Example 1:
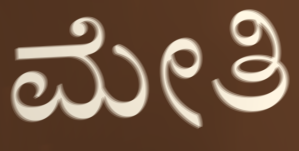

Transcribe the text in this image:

ಮೇತಿ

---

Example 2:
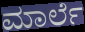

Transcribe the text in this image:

ಮಾರ್ಲೆ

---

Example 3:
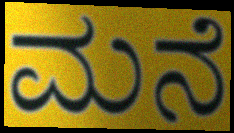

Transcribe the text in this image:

ಮನೆ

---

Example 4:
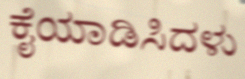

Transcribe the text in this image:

ಕೈಯಾಡಿಸಿದಳು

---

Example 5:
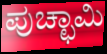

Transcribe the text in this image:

ಪುಚ್ಛಾಮಿ